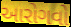
આરોગવો